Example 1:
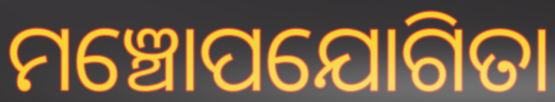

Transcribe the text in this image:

ମଞ୍ଚୋପଯୋଗିତା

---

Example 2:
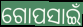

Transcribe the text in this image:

ଗୋପସାଇଁ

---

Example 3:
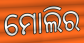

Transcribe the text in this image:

ମୋଲିର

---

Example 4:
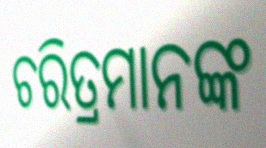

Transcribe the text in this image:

ଚରିତ୍ରମାନଙ୍କ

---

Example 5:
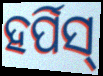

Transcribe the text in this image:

ହର୍ପିସ୍